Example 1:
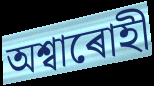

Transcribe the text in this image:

অশ্বাৰোহী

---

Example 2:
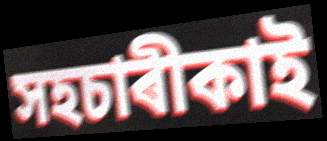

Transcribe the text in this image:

সহচাৰীকাই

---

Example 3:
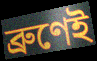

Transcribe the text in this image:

ব্ৰুণেই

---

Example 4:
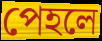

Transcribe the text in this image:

পেহলে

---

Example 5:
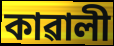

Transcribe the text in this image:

কাৱালী